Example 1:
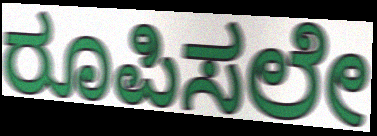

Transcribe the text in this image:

ರೂಪಿಸಲೇ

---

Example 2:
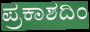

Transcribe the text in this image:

ಪ್ರಕಾಶದಿಂ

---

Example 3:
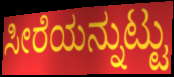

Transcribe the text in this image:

ಸೀರೆಯನ್ನುಟ್ಟು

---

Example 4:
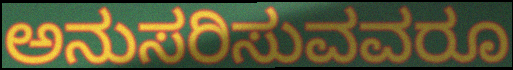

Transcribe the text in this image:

ಅನುಸರಿಸುವವರೂ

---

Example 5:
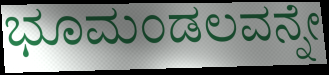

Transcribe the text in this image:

ಭೂಮಂಡಲವನ್ನೇ